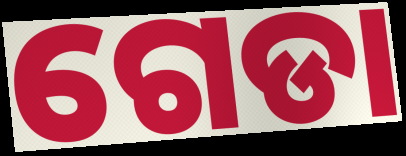
ଗେଡା